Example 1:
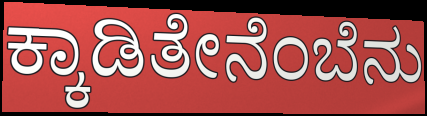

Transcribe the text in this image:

ಕ್ಕಾಡಿತೇನೆಂಬೆನು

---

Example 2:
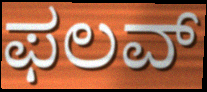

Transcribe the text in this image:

ಫಲವ್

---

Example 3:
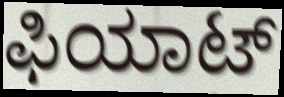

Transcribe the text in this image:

ಫಿಯಾಟ್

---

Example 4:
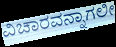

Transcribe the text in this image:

ವಿಚಾರವನ್ನಾಗಲೀ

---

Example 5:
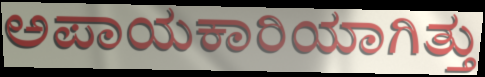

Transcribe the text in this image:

ಅಪಾಯಕಾರಿಯಾಗಿತ್ತು